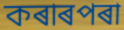
কৰাৰপৰা